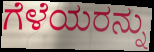
ಗೆಳೆಯರನ್ನು